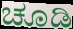
ಚೂಡಿ